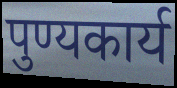
पुण्यकार्य